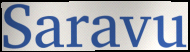
Saravu